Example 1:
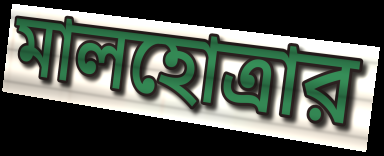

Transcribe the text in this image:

মালহোত্রার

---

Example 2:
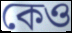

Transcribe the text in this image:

কেও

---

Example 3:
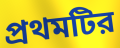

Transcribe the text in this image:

প্রথমটির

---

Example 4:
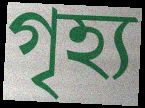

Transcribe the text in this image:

গৃহ্য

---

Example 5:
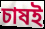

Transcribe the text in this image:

চাষই